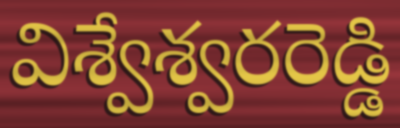
విశ్వేశ్వరరెడ్డి